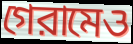
গেরামেও